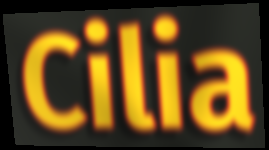
Cilia